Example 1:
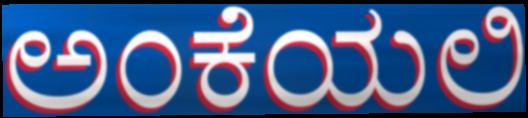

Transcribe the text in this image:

ಅಂಕೆಯಲಿ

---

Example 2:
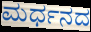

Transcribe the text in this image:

ಮರ್ಧನದ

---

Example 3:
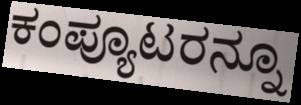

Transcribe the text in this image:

ಕಂಪ್ಯೂಟರನ್ನೂ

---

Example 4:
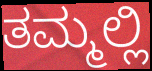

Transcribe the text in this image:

ತಮ್ಮಲ್ಲಿ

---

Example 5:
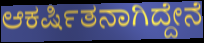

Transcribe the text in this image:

ಆಕರ್ಷಿತನಾಗಿದ್ದೇನೆ